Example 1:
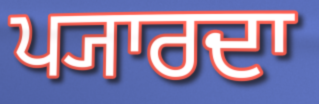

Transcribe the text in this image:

ਪ੍ਯਾਰਦਾ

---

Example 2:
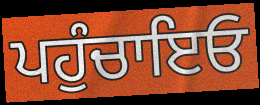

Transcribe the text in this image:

ਪਹੁੰਚਾਇਓ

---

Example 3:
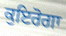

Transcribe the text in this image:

ਕੁਇਰੋਗਾ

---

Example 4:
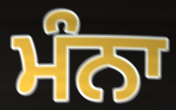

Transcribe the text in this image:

ਮੰਨਾ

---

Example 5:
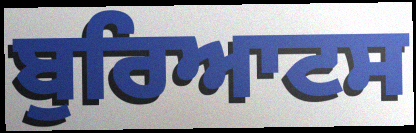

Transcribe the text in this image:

ਬੁਰਿਆਟਸ